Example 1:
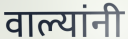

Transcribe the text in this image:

वाल्यांनी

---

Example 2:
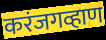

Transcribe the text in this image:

करंजगव्हाण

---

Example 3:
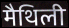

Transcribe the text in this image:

मैथिली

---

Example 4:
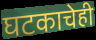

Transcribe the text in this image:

घटकाचेही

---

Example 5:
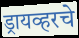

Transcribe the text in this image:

ड्रायव्हरचे